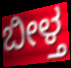
ಬೀಳ್ತ